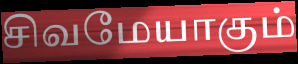
சிவமேயாகும்